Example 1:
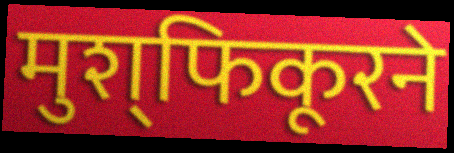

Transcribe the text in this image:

मुश्फिकूरने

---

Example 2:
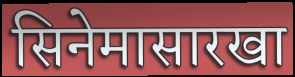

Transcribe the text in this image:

सिनेमासारखा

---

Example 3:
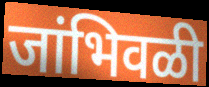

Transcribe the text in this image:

जांभिवळी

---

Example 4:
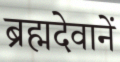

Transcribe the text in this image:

ब्रह्मदेवानें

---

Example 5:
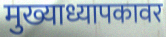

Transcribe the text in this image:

मुख्याध्यापकावर